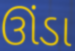
ઊંડા